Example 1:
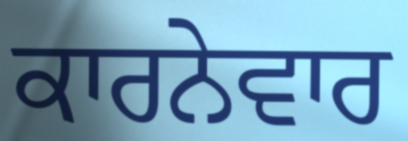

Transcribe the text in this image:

ਕਾਰਨੇਵਾਰ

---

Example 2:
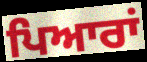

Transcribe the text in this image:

ਪਿਆਰਾਂ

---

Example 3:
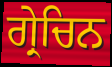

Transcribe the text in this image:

ਗ੍ਰੇਚਿਨ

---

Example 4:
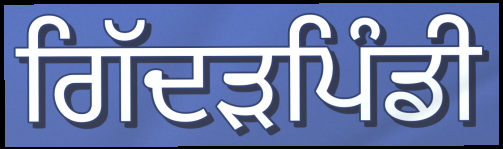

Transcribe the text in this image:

ਗਿੱਦੜਪਿੰਡੀ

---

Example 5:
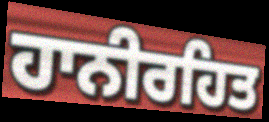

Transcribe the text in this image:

ਹਾਨੀਰਹਿਤ